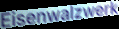
Eisenwalzwerk